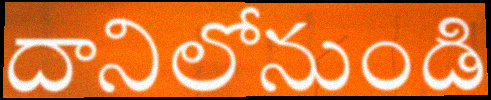
దానిలోనుండి